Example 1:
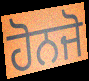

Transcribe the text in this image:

ਹੋਨਜੋ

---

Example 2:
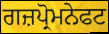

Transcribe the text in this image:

ਗਜ਼ਪ੍ਰੋਮਨੇਫਟ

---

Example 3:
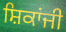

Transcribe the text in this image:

ਸ਼ਿਕਾਂਜੀ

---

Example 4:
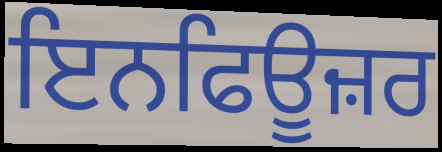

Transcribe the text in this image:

ਇਨਫਿਊਜ਼ਰ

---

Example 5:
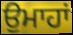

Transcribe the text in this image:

ਉਮਾਹਾਂ